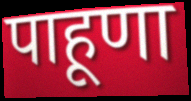
पाहूणा